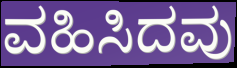
ವಹಿಸಿದವು